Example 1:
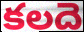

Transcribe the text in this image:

కలదె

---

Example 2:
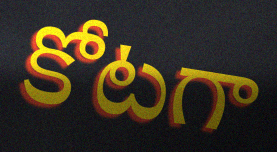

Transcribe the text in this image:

కోటగా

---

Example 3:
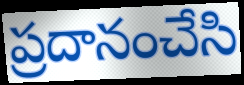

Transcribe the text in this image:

ప్రదానంచేసి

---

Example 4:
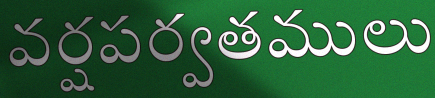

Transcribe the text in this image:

వర్షపర్వతములు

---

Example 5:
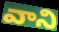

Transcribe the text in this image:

వాని